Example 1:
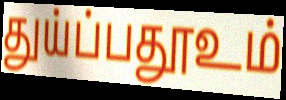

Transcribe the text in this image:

துய்ப்பதூஉம்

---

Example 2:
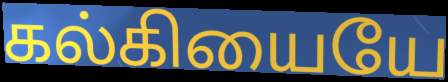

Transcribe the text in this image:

கல்கியையே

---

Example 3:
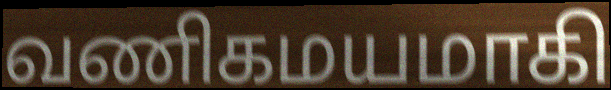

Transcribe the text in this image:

வணிகமயமாகி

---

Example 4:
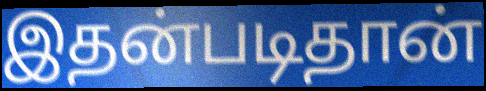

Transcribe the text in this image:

இதன்படிதான்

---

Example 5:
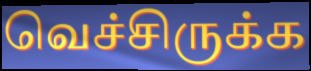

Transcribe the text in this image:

வெச்சிருக்க